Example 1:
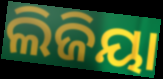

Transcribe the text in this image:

ଲିଜିୟା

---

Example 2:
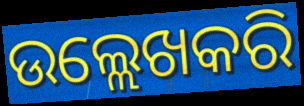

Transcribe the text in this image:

ଉଲ୍ଲେଖକରି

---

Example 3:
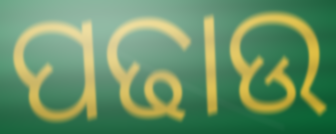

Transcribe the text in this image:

ପଢାଉ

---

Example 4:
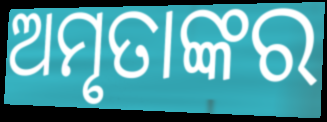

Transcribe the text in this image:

ଅମୃତାଙ୍କର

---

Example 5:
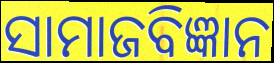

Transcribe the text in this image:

ସାମାଜବିଜ୍ଞାନ